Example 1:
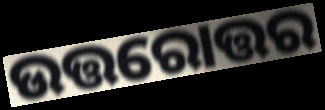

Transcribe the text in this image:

ଉତ୍ତରୋତ୍ତର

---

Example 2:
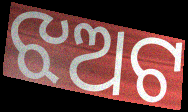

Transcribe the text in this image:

ଝଅଟ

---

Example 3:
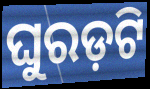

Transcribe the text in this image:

ଘୁରଡ଼ଟି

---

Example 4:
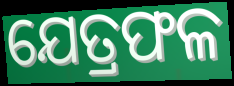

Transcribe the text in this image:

ଯେତ୍ରଫଳ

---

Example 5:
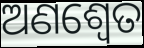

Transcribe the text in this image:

ଅଣଶ୍ୱେତ